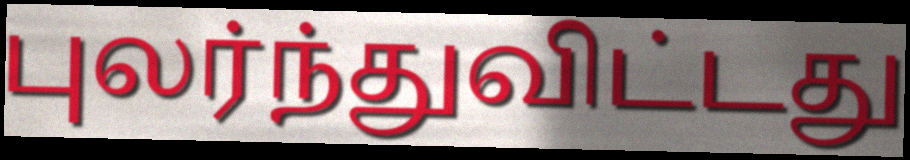
புலர்ந்துவிட்டது